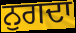
ਨੁਗਦਾ